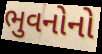
ભુવનોનો